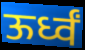
ऊर्ध्वं